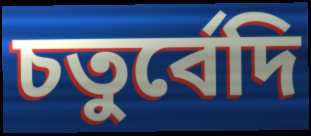
চতুর্বেদি